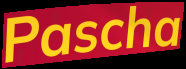
Pascha